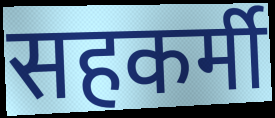
सहकर्मी